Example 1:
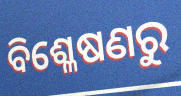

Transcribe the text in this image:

ବିଶ୍ଳେଷଣରୁ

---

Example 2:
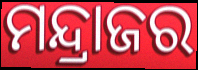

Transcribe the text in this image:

ମନ୍ଦ୍ରାଜର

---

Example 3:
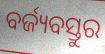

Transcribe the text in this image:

ବର୍ଜ୍ୟବସ୍ତୁର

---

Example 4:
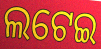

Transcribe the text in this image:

ଲଟେଇ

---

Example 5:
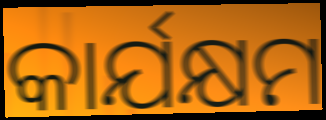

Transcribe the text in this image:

କାର୍ଯକ୍ଷମ